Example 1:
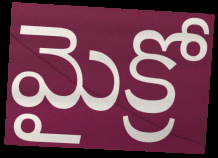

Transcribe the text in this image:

మైక్రో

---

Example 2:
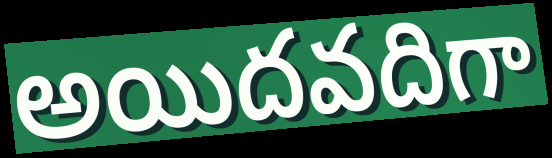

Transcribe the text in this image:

అయిదవదిగా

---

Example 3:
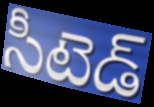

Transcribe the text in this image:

సీటెడ్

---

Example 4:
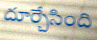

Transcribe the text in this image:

దూర్చేసింది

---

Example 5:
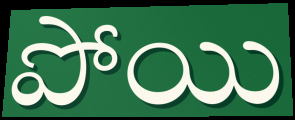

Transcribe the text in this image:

పోయి